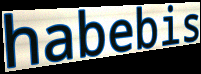
habebis